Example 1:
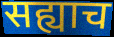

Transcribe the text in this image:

सह्याच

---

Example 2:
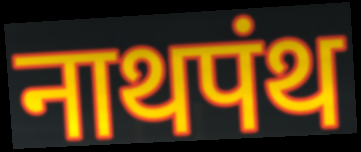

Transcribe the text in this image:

नाथपंथ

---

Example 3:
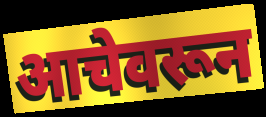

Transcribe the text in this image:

आचेवरून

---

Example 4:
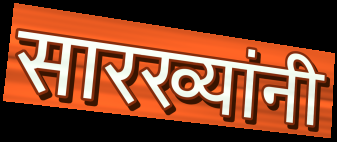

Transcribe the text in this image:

सारख्यांनी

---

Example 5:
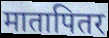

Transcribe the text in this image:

मातापितर